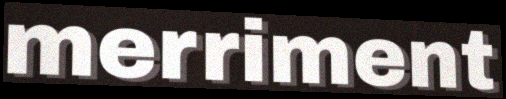
merriment